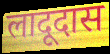
लादूदास